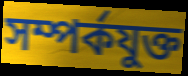
সম্পৰ্কযুক্ত